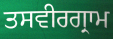
ਤਸਵੀਰਗ੍ਰਾਮ